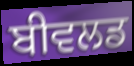
ਬੀਵਲਡ